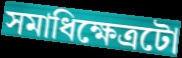
সমাধিক্ষেত্ৰটো